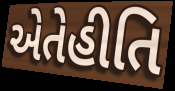
એતેહીતિ